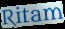
Ritam